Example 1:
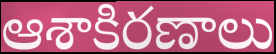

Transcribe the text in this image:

ఆశాకిరణాలు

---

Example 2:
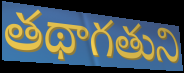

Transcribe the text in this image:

తథాగతుని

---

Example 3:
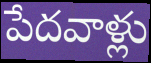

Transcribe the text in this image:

పేదవాళ్లు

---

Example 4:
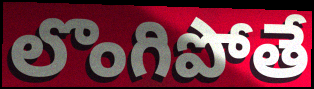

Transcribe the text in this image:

లొంగిపోతే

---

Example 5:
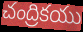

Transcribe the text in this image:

చంద్రికయు